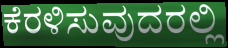
ಕೆರಳಿಸುವುದರಲ್ಲಿ